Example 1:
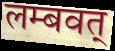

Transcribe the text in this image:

लम्बवत्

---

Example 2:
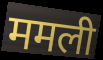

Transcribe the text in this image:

ममली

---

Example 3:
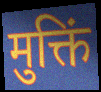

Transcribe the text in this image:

मुक्तिं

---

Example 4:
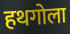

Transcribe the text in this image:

हथगोला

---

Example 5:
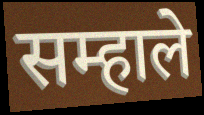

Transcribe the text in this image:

सम्हाले